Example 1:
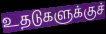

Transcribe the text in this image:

உதடுகளுக்குச்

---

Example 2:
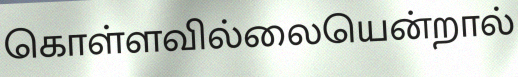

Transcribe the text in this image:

கொள்ளவில்லையென்றால்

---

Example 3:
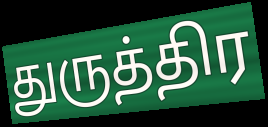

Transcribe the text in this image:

துருத்திர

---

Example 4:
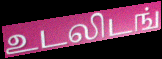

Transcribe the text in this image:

உடலிடங்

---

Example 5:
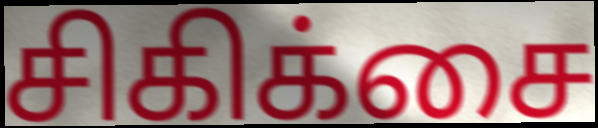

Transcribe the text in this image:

சிகிக்சை